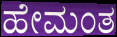
ಹೇಮಂತ